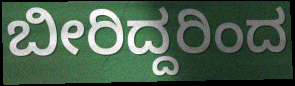
ಬೀರಿದ್ದರಿಂದ